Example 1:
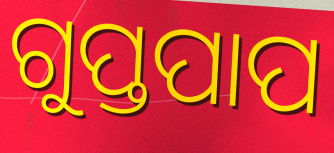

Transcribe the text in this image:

ଗୁପ୍ତପାପ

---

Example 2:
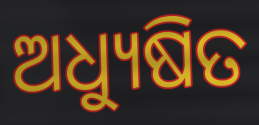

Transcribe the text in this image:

ଅଧ୍ୟୁଷିତ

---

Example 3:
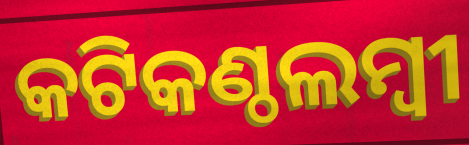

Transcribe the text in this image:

କଟିକଣ୍ଠଲମ୍ବୀ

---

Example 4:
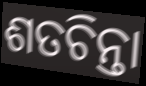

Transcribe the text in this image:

ଶତଚିନ୍ତା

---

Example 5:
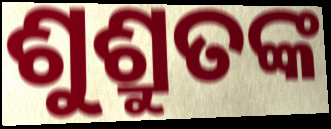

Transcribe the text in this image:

ଶୁଶ୍ରୁତଙ୍କ